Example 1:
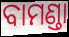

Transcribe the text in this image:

ବାମଣ୍ଡା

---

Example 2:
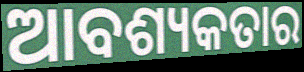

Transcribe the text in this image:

ଆବଶ୍ୟକତାର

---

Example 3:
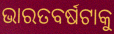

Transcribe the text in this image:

ଭାରତବର୍ଷଟାକୁ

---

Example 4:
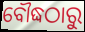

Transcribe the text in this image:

ବୌଦ୍ଧଠାରୁ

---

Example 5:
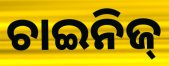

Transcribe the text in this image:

ଚାଇନିଜ୍